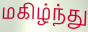
மகிழ்ந்து